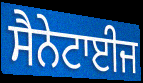
ਸੈਨੇਟਾਈਜ